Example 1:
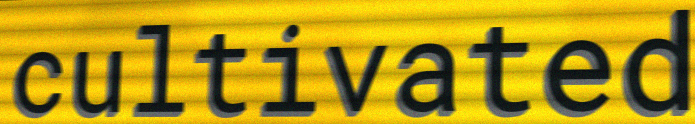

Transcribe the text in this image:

cultivated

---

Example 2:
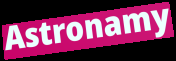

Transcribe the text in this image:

Astronamy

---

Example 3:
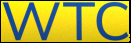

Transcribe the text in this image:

WTC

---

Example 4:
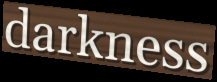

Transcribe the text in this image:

darkness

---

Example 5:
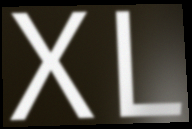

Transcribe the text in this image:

XL